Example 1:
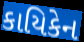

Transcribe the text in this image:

કાયિકેન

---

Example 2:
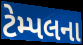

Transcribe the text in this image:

ટેમ્પલના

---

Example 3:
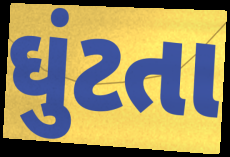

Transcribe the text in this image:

ઘુંટતા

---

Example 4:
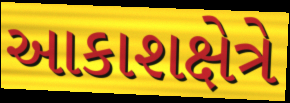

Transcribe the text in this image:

આકાશક્ષેત્રે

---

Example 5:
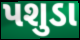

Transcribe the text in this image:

પશુડા